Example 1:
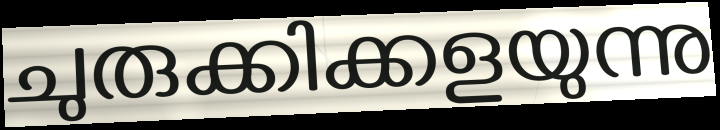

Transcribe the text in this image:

ചുരുക്കിക്കളയുന്നു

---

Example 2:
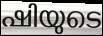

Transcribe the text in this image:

ഷിയുടെ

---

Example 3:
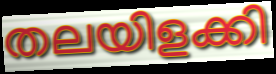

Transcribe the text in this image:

തലയിളക്കി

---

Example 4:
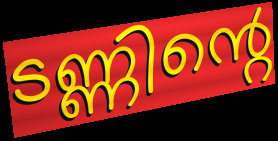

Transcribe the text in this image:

ടണ്ണിന്റെ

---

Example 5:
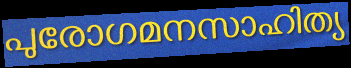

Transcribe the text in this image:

പുരോഗമനസാഹിത്യ